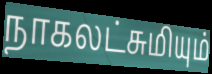
நாகலட்சுமியும்